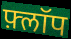
फ़्लॉप